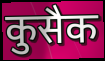
कुसैक